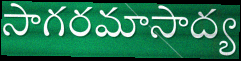
సాగరమాసాద్య